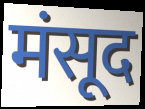
मंसूद